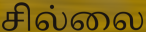
சில்லை